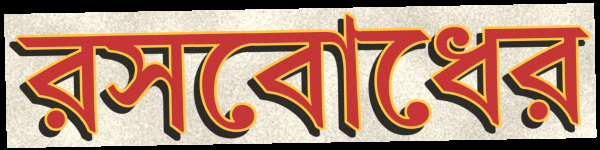
রসবোধের